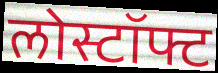
लोस्टॉफ्ट